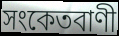
সংকেতবাণী